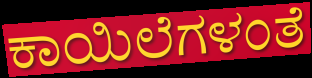
ಕಾಯಿಲೆಗಳಂತೆ